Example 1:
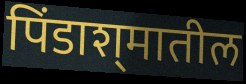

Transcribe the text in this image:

पिंडाश्मातील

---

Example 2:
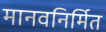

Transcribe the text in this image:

मानवनिर्मित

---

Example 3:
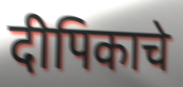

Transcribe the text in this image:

दीपिकाचे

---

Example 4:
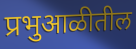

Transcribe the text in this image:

प्रभुआळीतील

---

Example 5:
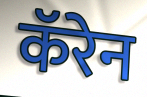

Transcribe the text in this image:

कॅरेन